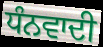
ਧੰਨਵਾਦੀ